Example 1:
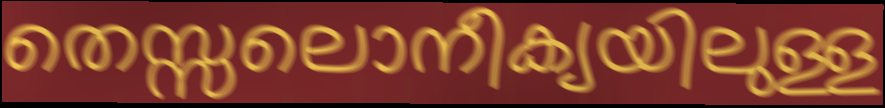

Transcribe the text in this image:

തെസ്സലൊനീക്യയിലുള്ള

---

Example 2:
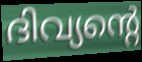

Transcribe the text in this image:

ദിവ്യന്റെ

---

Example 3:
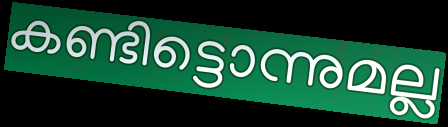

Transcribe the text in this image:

കണ്ടിട്ടൊന്നുമല്ല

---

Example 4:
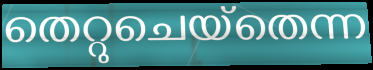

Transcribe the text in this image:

തെറ്റുചെയ്‌തെന്ന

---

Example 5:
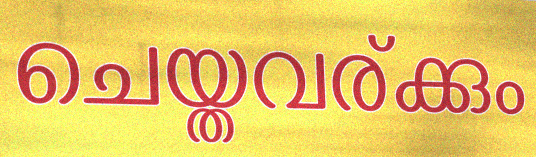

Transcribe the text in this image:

ചെയ്തവര്ക്കും